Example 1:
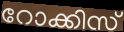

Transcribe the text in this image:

റോക്കിസ്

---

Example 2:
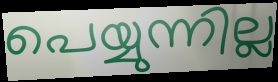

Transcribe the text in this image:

പെയ്യുന്നില്ല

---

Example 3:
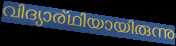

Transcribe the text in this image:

വിദ്യാര്ഥിയായിരുന്നു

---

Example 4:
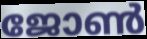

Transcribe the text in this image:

ജോൺ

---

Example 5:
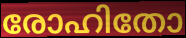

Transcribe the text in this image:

രോഹിതോ